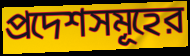
প্রদেশসমূহের